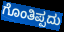
ಗೊಂತಿಪ್ಪದು